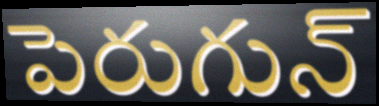
పెరుగున్